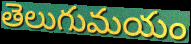
తెలుగుమయం